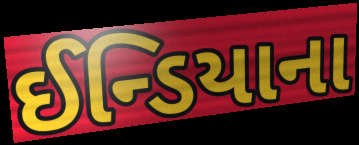
ઈન્ડિયાના